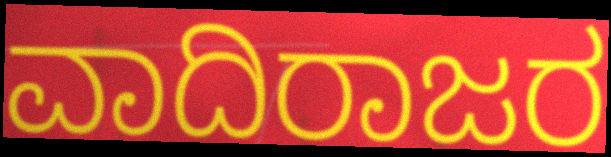
ವಾದಿರಾಜರ